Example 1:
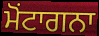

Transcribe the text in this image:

ਮੋਂਟਾਗਨਾ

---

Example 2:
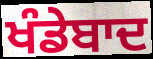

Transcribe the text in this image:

ਖੰਡੇਬਾਦ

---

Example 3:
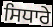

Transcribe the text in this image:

ਸਿਧਾਰੇ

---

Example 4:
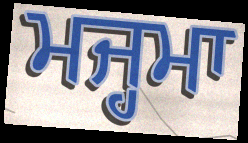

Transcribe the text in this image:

ਮਜ੍ਹਮਾ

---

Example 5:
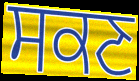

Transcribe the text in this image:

ਸਕਣ